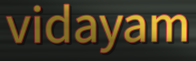
vidayam